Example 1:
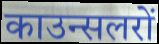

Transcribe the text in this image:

काउन्सलरों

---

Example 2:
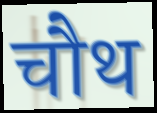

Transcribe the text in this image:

चौथ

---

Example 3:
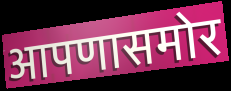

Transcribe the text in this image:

आपणासमोर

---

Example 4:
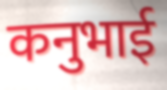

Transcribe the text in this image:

कनुभाई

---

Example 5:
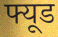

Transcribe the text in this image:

फ्यूड